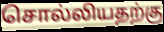
சொல்லியதற்கு